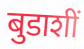
बुडाशीं